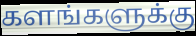
களங்களுக்கு